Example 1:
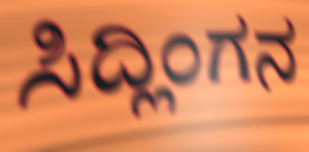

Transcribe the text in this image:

ಸಿದ್ಲಿಂಗನ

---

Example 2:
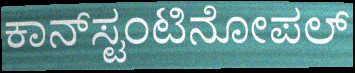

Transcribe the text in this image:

ಕಾನ್‍ಸ್ಟಂಟಿನೋಪಲ್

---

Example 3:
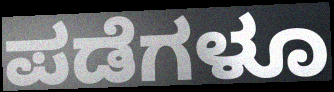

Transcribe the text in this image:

ಪಡೆಗಳೂ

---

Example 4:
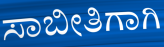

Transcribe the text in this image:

ಸಾಬೀತಿಗಾಗಿ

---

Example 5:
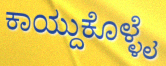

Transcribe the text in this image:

ಕಾಯ್ದುಕೊಳ್ಳೈ